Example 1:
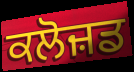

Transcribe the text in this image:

ਕਲੋਜ਼ਡ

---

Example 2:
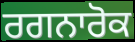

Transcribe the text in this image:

ਰਗਨਾਰੋਕ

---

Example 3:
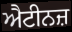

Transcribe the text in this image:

ਐਟੀਨਜ਼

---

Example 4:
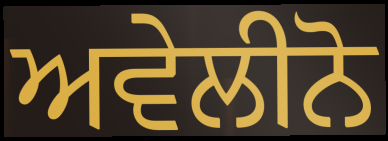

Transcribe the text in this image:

ਅਵੇਲੀਨੋ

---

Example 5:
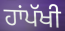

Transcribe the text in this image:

ਹਾਂਪੱਖੀ